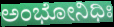
ಅಂಭೋನಿಧಿಃ